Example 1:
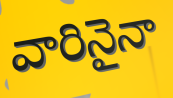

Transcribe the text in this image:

వారినైనా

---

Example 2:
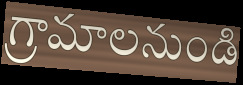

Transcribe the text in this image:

గ్రామాలనుండి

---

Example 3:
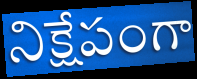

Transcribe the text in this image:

నిక్షేపంగా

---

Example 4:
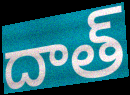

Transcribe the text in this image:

దాత్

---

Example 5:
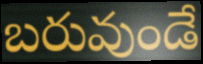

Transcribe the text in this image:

బరువుండే